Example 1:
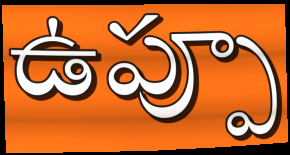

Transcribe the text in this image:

ఉప్పూ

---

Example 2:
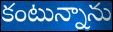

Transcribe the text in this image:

కంటున్నాను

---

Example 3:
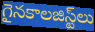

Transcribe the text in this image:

గైనకాలజిస్ట్‌లు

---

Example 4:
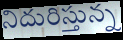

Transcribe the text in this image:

నిదురిస్తున్న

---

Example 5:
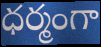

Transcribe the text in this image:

ధర్మంగా